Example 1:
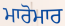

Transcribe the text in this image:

ਮਾਰੋਮਾਰ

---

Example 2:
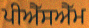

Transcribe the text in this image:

ਪੀਐੱਸਐੱਮ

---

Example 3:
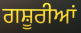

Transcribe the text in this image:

ਗਸ਼ੂਰੀਆਂ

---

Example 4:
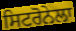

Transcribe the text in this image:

ਸਿਟਰੋਨੇਲਾ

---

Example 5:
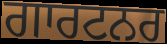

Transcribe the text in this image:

ਗਾਰਟਨਰ